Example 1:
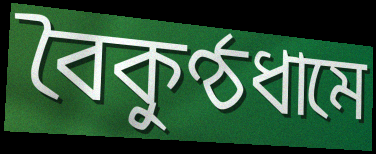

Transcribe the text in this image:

বৈকুণ্ঠধামে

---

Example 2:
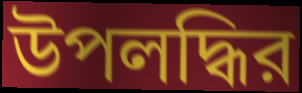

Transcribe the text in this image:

উপলদ্ধির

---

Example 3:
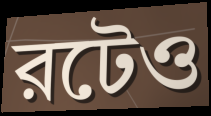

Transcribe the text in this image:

রটেও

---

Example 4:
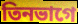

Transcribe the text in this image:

তিনভাগে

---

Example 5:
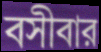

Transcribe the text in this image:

বসীবার